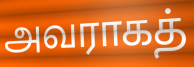
அவராகத்